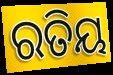
ରତିୟ